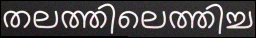
തലത്തിലെത്തിച്ച